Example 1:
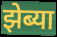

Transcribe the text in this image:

झेब्या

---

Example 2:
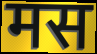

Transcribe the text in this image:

मस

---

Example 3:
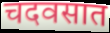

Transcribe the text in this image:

चदवसात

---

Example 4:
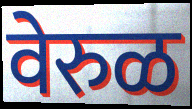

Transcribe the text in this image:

वेरुळ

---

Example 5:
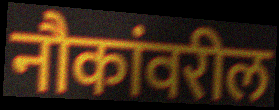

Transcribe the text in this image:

नौकांवरील